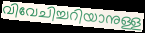
വിവേചിച്ചറിയാനുള്ള